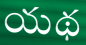
యథ